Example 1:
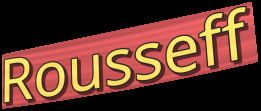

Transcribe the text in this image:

Rousseff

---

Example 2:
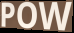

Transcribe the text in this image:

POW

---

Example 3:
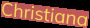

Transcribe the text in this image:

Christiana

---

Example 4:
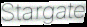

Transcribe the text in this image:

Stargate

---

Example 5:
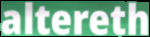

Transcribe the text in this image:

altereth